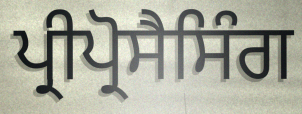
ਪ੍ਰੀਪ੍ਰੋਸੈਸਿੰਗ